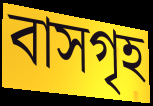
বাসগৃহ